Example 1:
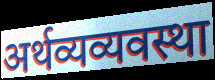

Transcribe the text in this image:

अर्थव्यव्यवस्था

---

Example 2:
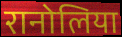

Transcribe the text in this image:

रानोलिया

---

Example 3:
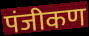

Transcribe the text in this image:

पंजीकण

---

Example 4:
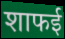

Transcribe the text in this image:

शाफई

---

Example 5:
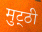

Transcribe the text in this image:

मुट्‌ठी